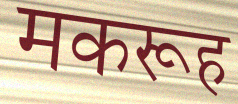
मकरूह